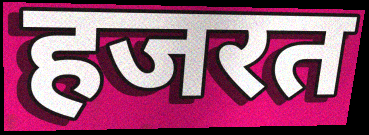
हजरत